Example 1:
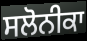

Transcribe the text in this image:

ਸਲੋਨੀਕਾ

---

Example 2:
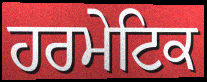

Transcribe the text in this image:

ਹਰਮੇਟਿਕ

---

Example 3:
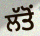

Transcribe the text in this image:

ਲੱਤੋਂ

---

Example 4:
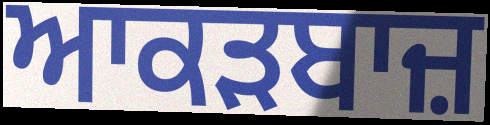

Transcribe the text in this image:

ਆਕੜਬਾਜ਼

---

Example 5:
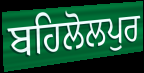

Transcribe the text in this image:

ਬਹਿਲੋਲਪੁਰ